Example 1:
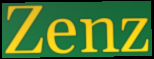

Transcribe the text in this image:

Zenz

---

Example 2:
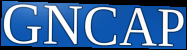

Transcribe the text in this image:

GNCAP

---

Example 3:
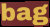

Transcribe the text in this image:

bag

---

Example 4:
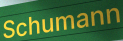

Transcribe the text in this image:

Schumann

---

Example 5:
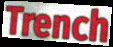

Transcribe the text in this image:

Trench